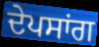
ਦੇਪਸਾਂਗ